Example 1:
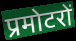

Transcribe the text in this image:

प्रमोटरों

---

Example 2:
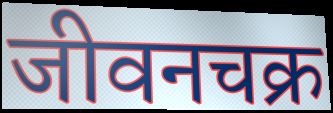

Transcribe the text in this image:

जीवनचक्र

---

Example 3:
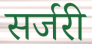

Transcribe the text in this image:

सर्जरी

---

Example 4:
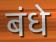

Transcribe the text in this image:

बंधे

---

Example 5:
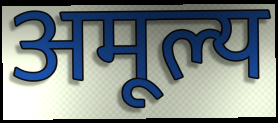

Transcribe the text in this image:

अमूल्‍य